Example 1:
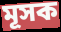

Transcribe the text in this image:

মূসক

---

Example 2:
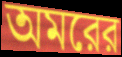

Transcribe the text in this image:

অমরের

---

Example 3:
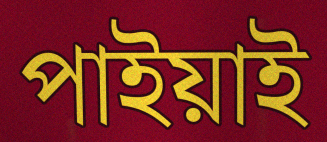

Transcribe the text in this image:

পাইয়াই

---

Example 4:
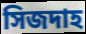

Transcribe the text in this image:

সিজদাহ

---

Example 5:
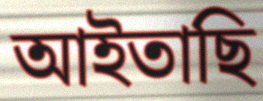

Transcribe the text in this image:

আইতাছি